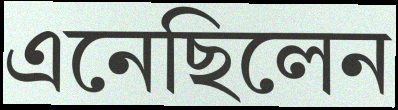
এনেছিলেন